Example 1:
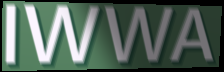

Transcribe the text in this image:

IWWA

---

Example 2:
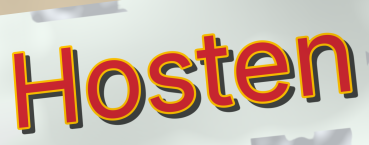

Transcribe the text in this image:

Hosten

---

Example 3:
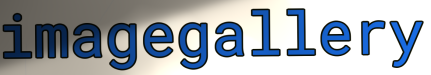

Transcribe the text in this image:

imagegallery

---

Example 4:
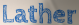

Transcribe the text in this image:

Lather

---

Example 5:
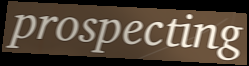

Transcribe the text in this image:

prospecting